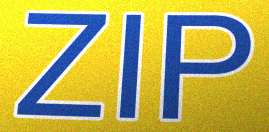
ZIP